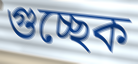
গুচ্ছেক